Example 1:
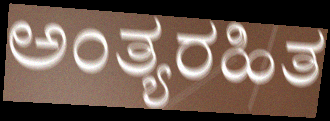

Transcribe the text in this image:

ಅಂತ್ಯರಹಿತ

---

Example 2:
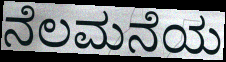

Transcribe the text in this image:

ನೆಲಮನೆಯ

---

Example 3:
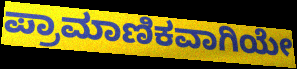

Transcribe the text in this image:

ಪ್ರಾಮಾಣಿಕವಾಗಿಯೇ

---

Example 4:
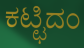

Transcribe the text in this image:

ಕಟ್ಟಿದಂ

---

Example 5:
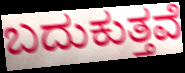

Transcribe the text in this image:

ಬದುಕುತ್ತವೆ